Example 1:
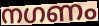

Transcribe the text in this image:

നഗണം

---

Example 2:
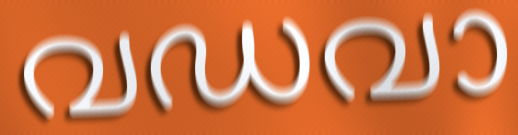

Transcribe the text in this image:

വഡവാ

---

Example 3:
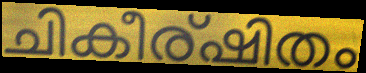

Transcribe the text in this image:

ചികീര്ഷിതം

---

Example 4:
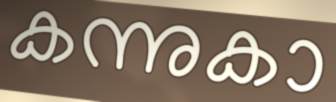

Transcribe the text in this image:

കന്നുകാ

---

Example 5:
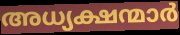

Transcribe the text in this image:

അധ്യക്ഷന്മാർ